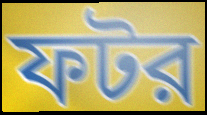
ফটর